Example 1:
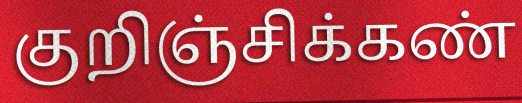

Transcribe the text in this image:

குறிஞ்சிக்கண்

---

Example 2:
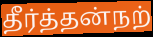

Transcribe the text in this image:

தீர்த்தன்நற்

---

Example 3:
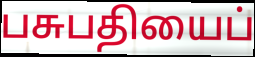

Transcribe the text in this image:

பசுபதியைப்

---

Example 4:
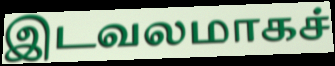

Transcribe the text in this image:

இடவலமாகச்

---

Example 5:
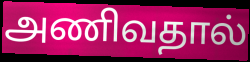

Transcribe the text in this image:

அணிவதால்